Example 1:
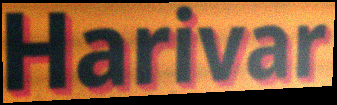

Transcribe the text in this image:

Harivar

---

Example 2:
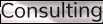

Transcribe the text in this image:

Consulting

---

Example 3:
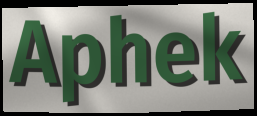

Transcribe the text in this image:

Aphek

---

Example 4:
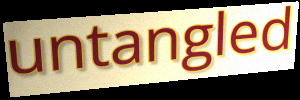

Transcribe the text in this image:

untangled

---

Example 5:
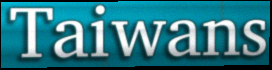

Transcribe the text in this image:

Taiwans